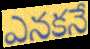
ఎనకనే